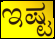
ಇಷ್ಟ